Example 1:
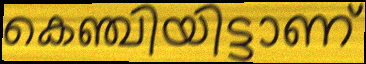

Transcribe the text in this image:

കെഞ്ചിയിട്ടാണ്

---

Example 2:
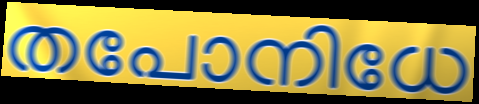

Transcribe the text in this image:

തപോനിധേ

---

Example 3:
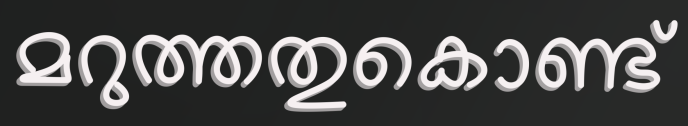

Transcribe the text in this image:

മറുത്തതുകൊണ്ട്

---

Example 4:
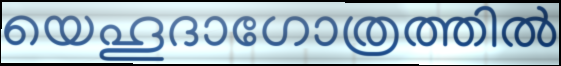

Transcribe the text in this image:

യെഹൂദാഗോത്രത്തിൽ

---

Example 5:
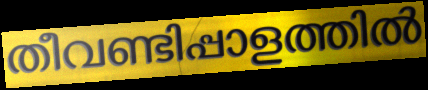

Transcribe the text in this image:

തീവണ്ടിപ്പാളത്തിൽ